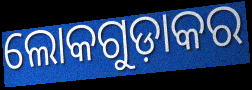
ଲୋକଗୁଡ଼ାକର